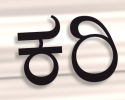
ಕರಿ